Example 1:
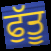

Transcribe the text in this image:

ਫੁੱਤੂ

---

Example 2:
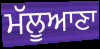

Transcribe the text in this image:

ਮੱਲੂਆਣਾ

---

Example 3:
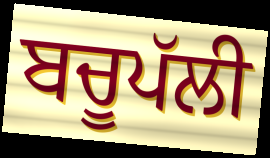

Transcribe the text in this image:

ਬਚੂਪੱਲੀ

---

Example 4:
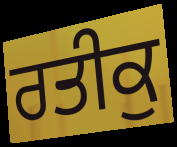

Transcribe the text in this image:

ਰਤੀਕੁ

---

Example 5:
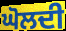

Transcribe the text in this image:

ਘੋਲਦੀ